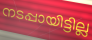
നടപ്പായിട്ടില്ല